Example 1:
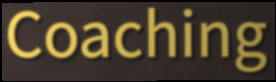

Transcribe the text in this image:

Coaching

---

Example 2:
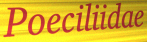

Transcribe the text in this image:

Poeciliidae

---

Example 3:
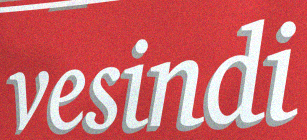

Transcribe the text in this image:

vesindi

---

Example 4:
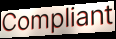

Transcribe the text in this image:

Compliant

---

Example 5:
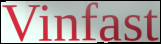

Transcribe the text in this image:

Vinfast